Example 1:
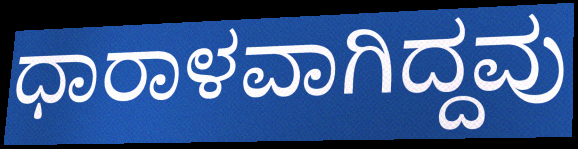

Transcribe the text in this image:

ಧಾರಾಳವಾಗಿದ್ದವು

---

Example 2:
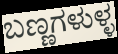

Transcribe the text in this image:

ಬಣ್ಣಗಳುಳ್ಳ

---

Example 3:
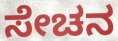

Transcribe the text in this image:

ಸೇಚನ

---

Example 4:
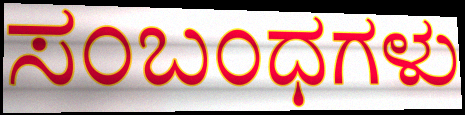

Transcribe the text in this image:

ಸಂಬಂಧಗಳು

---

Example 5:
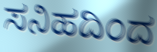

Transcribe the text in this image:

ಸನಿಹದಿಂದ